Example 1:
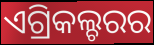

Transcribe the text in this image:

ଏଗ୍ରିକଲ୍ଚରର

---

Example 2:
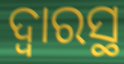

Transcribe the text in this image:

ଦ୍ବାରସ୍ଥ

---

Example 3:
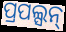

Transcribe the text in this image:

ପ୍ରପଲ୍ସନ୍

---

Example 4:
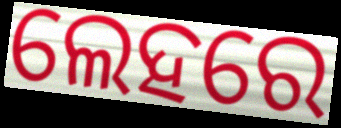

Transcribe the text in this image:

ଲେହରେ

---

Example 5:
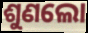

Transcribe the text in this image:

ଶୁଣଲୋ